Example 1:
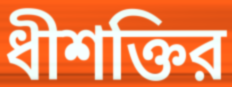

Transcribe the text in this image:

ধীশক্তির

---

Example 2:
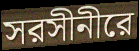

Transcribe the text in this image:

সরসীনীরে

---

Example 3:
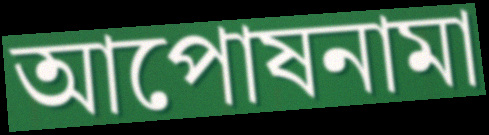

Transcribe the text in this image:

আপোষনামা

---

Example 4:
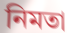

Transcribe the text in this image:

নিমতা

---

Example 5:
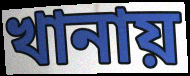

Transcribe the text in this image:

খানায়